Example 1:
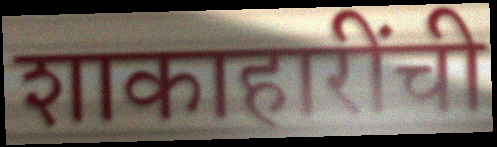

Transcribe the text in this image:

शाकाहारींची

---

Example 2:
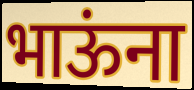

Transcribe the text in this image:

भाऊंना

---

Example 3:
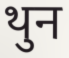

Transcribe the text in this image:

थुन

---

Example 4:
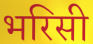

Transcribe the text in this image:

भरिसी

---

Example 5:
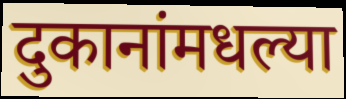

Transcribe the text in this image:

दुकानांमधल्या